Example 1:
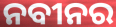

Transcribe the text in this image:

ନବୀନର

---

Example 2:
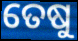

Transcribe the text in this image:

ତେଷୁ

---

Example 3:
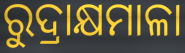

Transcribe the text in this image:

ରୁଦ୍ରାକ୍ଷମାଳା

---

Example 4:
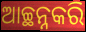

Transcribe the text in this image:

ଆଚ୍ଛନ୍ନକରି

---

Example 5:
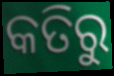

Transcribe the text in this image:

କତିରୁ